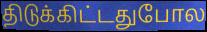
திடுக்கிட்டதுபோல